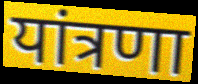
यांत्रणा